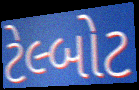
ટેલ્બોટ